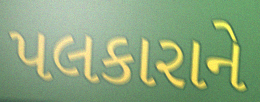
પલકારાને